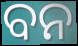
ବନ